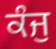
ਕੰਜੁ